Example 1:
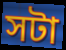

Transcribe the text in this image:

সটা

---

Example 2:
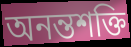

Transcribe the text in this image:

অনন্তশক্তি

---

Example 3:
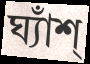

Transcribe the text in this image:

ঘ্যাঁশ্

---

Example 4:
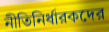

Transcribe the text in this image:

নীতিনির্ধারকদের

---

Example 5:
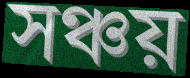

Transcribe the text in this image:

সঞ্চয়